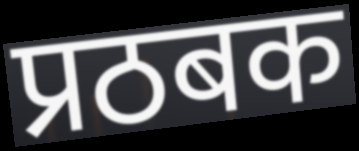
प्रठबक